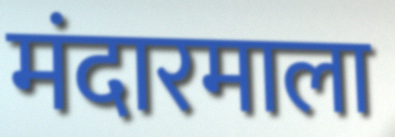
मंदारमाला